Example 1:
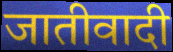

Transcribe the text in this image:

जातीवादी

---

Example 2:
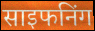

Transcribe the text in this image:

साइफनिंग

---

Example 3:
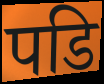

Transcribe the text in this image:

पडि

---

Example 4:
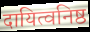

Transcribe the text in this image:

दायित्वनिष्ठ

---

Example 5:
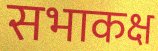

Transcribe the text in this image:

सभाकक्ष